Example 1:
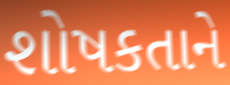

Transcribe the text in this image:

શોષકતાને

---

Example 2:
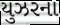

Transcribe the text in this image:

યુઝરના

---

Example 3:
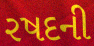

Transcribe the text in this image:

રષદની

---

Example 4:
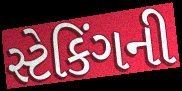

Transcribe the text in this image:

સ્ટેકિંગની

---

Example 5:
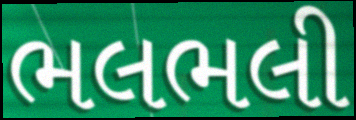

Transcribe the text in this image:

ભલભલી